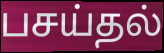
பசய்தல்